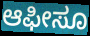
ಆಫೀಸೂ